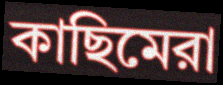
কাছিমেরা